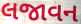
લજાવન